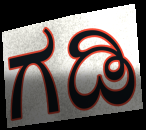
ಗಡಿ